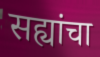
सह्यांचा